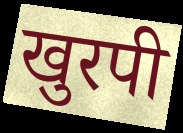
खुरपी